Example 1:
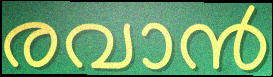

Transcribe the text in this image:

രവാൻ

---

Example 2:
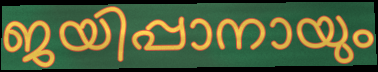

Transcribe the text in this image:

ജയിപ്പാനായും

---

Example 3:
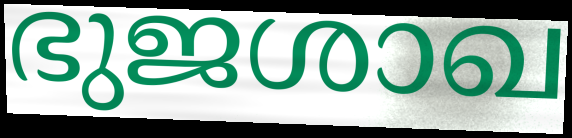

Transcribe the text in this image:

ഭുജശാഖ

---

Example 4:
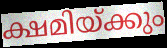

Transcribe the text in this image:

ക്ഷമിയ്ക്കും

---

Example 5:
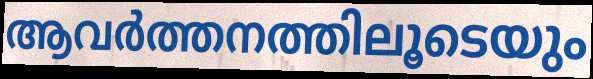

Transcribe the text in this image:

ആവർത്തനത്തിലൂടെയും